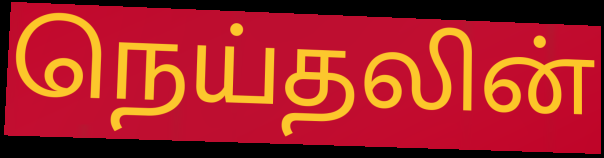
நெய்தலின்